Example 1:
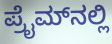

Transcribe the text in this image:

ಪ್ರೈಮ್‌ನಲ್ಲಿ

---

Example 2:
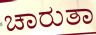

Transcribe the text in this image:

ಚಾರುತಾ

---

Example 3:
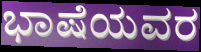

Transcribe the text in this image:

ಭಾಷೆಯವರ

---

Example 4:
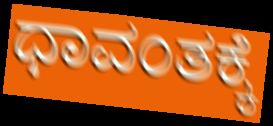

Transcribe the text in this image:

ಧಾವಂತಕ್ಕೆ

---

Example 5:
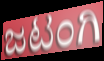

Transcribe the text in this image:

ಜಟಂಗಿ